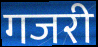
गजरी